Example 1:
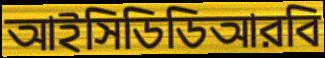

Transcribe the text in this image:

আইসিডিডিআরবি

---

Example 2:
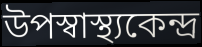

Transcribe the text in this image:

উপস্বাস্থ্যকেন্দ্র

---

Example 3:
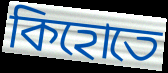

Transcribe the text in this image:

কিহোতে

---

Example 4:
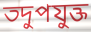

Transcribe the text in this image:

তদুপযুক্ত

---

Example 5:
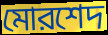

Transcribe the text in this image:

মোরশেদ